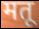
मतू